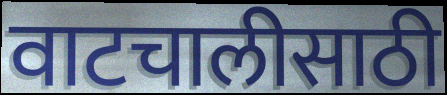
वाटचालीसाठी